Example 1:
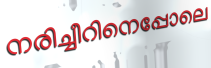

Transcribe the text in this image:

നരിച്ചീറിനെപ്പോലെ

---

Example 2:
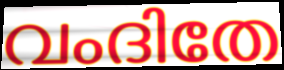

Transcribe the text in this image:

വംദിതേ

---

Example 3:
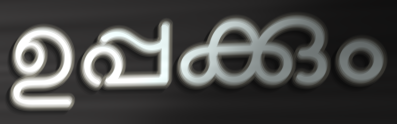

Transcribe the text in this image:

ഉപ്പക്കും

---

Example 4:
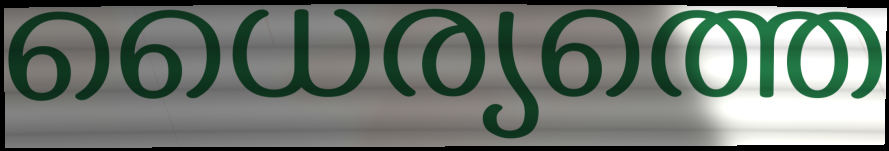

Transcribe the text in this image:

ധൈര്യത്തെ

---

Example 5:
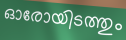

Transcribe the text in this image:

ഓരോയിടത്തും